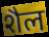
शैल